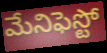
మేనిఫెస్టో